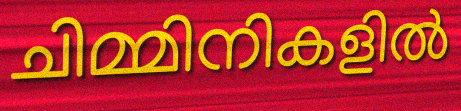
ചിമ്മിനികളിൽ